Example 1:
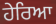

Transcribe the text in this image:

ਹੇਰਿਆ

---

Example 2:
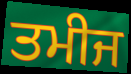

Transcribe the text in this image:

ਤਮੀਜ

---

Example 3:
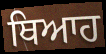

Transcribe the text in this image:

ਥਿਆਹ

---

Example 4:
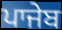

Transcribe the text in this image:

ਪਾਜੇਬ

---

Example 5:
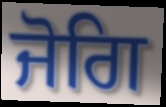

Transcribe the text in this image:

ਜੋਗਿ